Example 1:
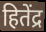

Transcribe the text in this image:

हितेंद्र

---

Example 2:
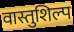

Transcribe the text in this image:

वास्तुशिल्प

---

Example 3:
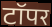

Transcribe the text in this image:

टॉपर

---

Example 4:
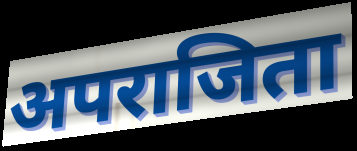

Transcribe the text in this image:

अपराजिता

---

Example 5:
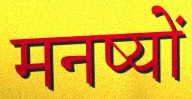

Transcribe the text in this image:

मनष्यों